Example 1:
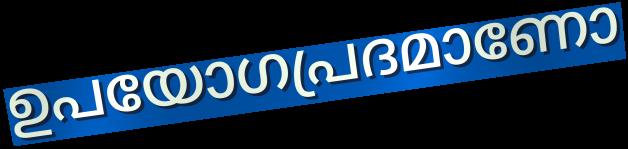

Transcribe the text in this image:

ഉപയോഗപ്രദമാണോ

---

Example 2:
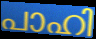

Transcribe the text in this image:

പാഹി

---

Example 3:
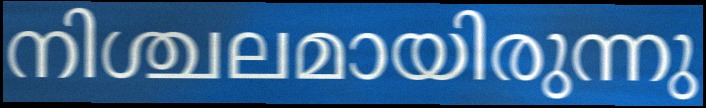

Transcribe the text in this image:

നിശ്ചലമായിരുന്നു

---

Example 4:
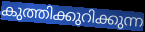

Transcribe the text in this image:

കുത്തിക്കുറിക്കുന്ന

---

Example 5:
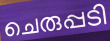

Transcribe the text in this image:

ചെരുപ്പടി